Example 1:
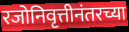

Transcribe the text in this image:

रजोनिवृत्तीनंतरच्या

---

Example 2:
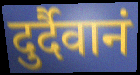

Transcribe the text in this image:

दुर्दैवानं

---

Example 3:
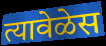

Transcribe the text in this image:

त्यावेळेस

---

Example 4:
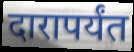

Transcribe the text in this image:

दारापर्यंत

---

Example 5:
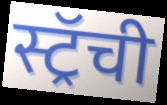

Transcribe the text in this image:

स्ट्रॅची